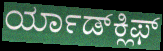
ರ್ಯಾಡ್‍ಕ್ಲಿಫ್